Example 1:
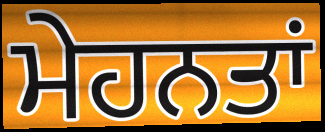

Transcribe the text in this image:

ਮੇਹਨਤਾਂ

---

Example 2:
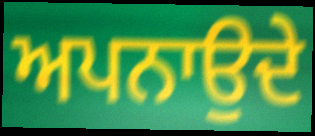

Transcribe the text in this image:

ਅਪਨਾਉਦੇ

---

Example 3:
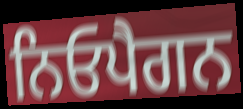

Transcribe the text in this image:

ਨਿਓਪੈਗਨ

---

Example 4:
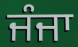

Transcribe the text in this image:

ਜੰਜਾ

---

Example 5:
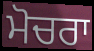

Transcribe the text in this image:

ਮੋਚਰਾ